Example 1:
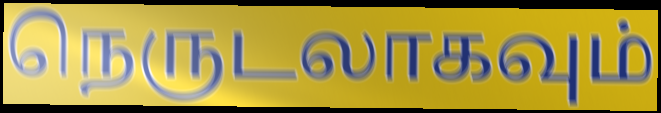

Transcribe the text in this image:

நெருடலாகவும்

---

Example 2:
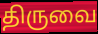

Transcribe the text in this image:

திருவை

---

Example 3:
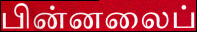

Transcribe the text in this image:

பின்னலைப்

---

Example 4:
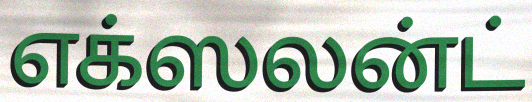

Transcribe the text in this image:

எக்ஸலன்ட்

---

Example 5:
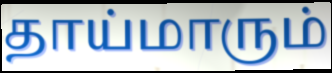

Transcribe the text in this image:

தாய்மாரும்